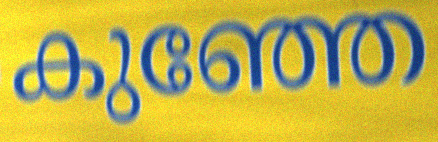
കുഞ്ഞേ